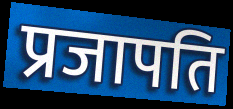
प्रजापति